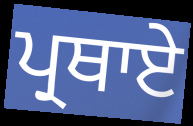
ਪ੍ਰਥਾਏ